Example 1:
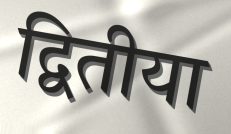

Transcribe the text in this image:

द्वितीया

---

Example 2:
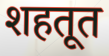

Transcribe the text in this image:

शहतूत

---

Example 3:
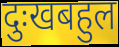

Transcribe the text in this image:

दुःखबहुल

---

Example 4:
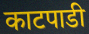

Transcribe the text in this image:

काटपाडी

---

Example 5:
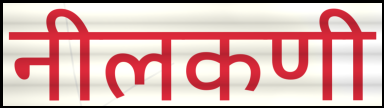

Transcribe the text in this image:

नीलकणी